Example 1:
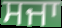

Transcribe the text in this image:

ਸਜਾ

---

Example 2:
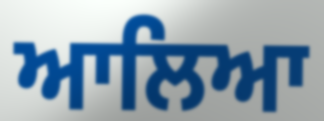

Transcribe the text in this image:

ਆਲਿਆ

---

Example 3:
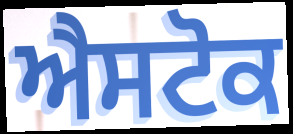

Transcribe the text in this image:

ਐਸਟੋਕ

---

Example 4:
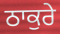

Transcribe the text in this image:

ਠਾਕੁਰੇ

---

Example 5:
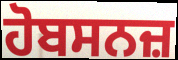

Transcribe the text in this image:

ਹੋਬਸਨਜ਼